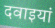
दवाइयां